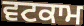
ਵਟਕਾਮ